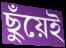
ছুঁয়েই